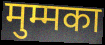
मुम्मका